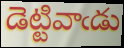
డెట్టివాఁడు